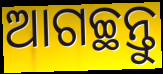
ଆଗଚ୍ଛନ୍ତୁ